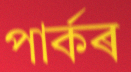
পাৰ্কৰ